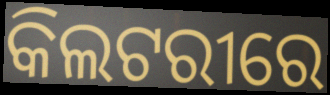
କିଲଟରୀରେ